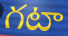
గటా